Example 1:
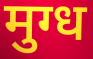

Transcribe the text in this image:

मुग्ध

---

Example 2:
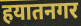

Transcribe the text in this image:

हयातनगर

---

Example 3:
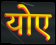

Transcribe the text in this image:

योए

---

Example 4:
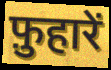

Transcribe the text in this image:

फ़ुहारें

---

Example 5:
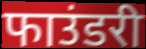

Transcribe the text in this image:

फाउंडरी